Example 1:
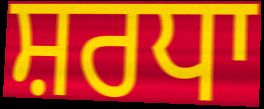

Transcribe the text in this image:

ਸ਼ਰਧਾ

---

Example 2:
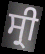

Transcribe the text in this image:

ਸ੍ਰੀ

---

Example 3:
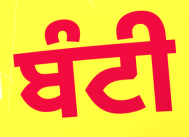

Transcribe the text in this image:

ਬੰਟੀ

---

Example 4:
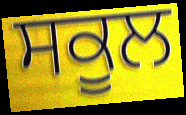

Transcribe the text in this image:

ਸਕੂਲ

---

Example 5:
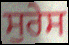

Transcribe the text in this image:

ਸੁਰੇਸ